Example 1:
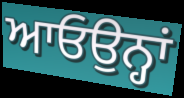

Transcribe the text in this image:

ਆਓਉਨ੍ਹਾਂ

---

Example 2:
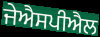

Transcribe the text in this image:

ਜੇਐਸਪੀਐਲ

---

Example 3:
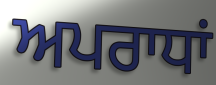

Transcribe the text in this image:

ਅਪਰਾਧਾਂ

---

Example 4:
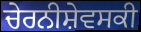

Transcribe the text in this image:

ਚੇਰਨੀਸ਼ੇਵਸਕੀ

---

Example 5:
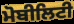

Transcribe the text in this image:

ਮੋਬੀਲਿਟੀ